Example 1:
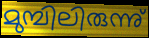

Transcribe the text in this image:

മുമ്പിലിരുന്നു്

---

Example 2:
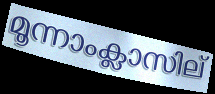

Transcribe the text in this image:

മൂന്നാംക്ലാസില്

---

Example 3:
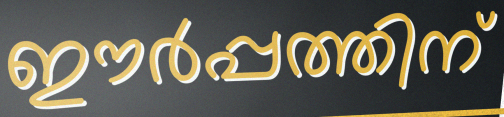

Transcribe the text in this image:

ഈർപ്പത്തിന്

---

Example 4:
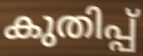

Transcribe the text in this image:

കുതിപ്പ്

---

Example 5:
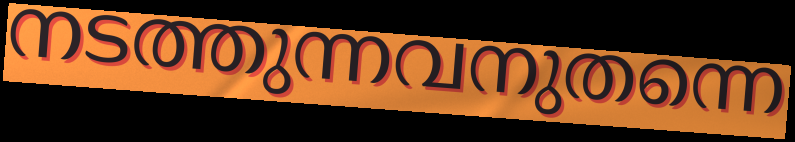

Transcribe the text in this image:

നടത്തുന്നവനുതന്നെ